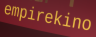
empirekino